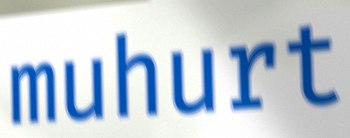
muhurt